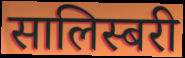
सालिस्बरी